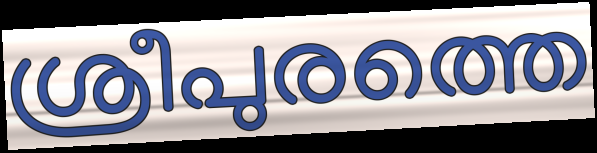
ശ്രീപുരത്തെ